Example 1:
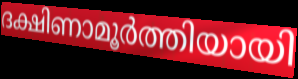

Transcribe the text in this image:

ദക്ഷിണാമൂർത്തിയായി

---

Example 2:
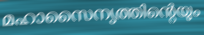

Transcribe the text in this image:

മഹാസൈന്യത്തിന്റെയും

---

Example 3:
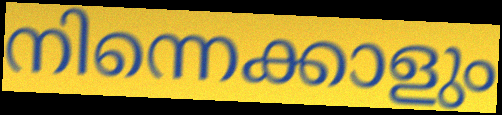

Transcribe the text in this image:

നിന്നെക്കാളും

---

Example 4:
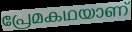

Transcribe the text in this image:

പ്രേമകഥയാണ്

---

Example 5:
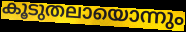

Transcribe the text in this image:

കൂടുതലായൊന്നും